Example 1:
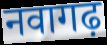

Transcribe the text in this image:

नवागढ़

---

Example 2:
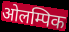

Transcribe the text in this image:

ओलम्पिक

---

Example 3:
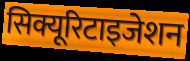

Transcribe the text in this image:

सिक्यूरिटाइजेशन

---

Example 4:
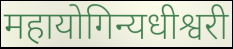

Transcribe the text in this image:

महायोगिन्यधीश्वरी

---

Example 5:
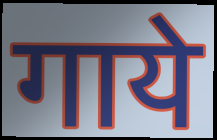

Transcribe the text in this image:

गाये